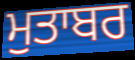
ਮੁਤਾਬਰ